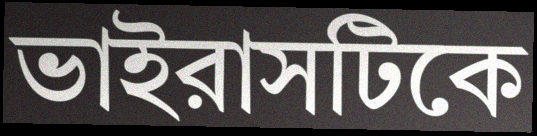
ভাইরাসটিকে